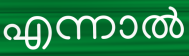
എന്നാൽ